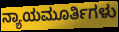
ನ್ಯಾಯಮೂರ್ತಿಗಳು